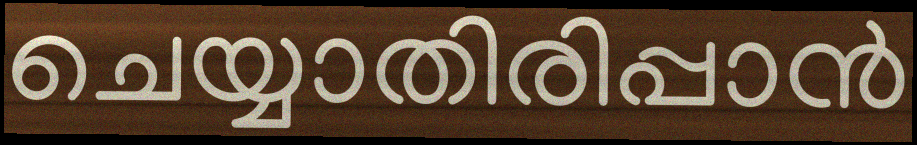
ചെയ്യാതിരിപ്പാൻ